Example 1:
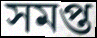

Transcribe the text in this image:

সমপ্ত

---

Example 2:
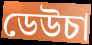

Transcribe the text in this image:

ডেউচা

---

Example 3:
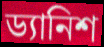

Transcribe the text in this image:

ড্যানিশ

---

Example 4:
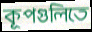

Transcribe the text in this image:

কূপগুলিতে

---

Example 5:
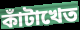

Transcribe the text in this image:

কাঁটাখেত